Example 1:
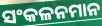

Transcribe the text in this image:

ସଂକଳନମାନ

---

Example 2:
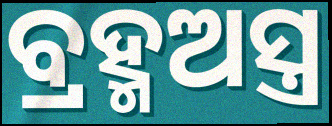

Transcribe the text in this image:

ବ୍ରହ୍ମଅସ୍ତ୍ର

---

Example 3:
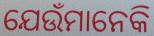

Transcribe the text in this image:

ଯେଉଁମାନେକି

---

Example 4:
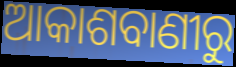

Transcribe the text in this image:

ଆକାଶବାଣୀରୁ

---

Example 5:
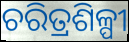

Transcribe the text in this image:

ଚରିତ୍ରଶିଳ୍ପୀ